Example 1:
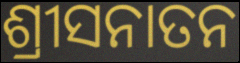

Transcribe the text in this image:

ଶ୍ରୀସନାତନ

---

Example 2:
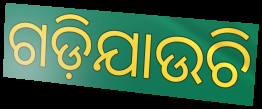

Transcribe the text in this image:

ଗଡ଼ିଯାଉଚି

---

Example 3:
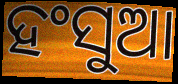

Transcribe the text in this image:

ହଂସୁଆ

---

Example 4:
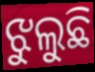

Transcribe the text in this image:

ଝୁଲୁଛି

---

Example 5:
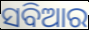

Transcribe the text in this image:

ସବିଆର